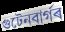
গুটেনবাৰ্গৰ